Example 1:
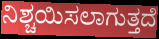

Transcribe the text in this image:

ನಿಶ್ಚಯಿಸಲಾಗುತ್ತದೆ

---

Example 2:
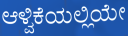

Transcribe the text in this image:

ಆಳ್ವಿಕೆಯಲ್ಲಿಯೇ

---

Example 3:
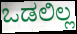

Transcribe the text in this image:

ಒಡಲಿಲ್ಲ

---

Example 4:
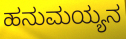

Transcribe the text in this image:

ಹನುಮಯ್ಯನ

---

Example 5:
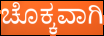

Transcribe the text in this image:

ಚೊಕ್ಕವಾಗಿ